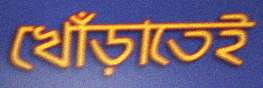
খোঁড়াতেই